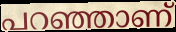
പറഞ്ഞാണ്